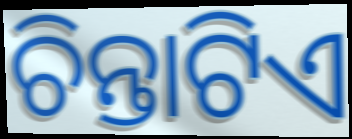
ଚିନ୍ତାଟିଏ